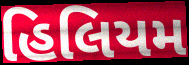
હિલિયમ